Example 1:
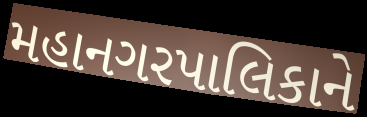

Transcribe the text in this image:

મહાનગરપાલિકાને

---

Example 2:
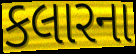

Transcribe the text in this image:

કલારના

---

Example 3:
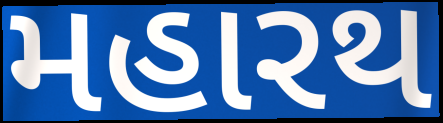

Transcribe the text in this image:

મહારથ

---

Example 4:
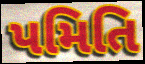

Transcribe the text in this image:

પમિતિ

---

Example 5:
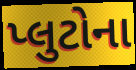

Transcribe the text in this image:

પ્લુટોના